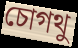
চোগথু